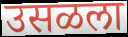
उसळला